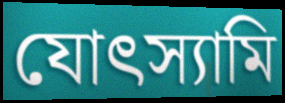
যোৎস্যামি